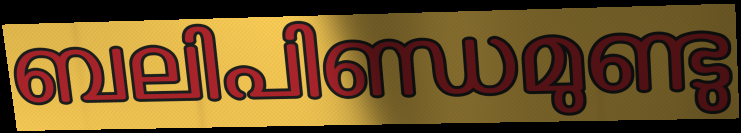
ബലിപിണ്ഡമുണ്ടു